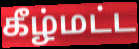
கீழ்மட்ட